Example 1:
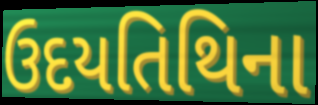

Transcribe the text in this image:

ઉદયતિથિના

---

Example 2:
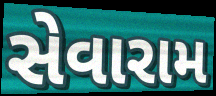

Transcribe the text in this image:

સેવારામ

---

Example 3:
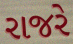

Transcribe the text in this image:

રાજરે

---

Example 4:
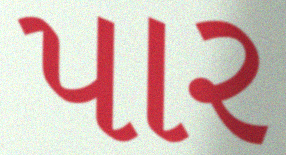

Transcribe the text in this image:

પાર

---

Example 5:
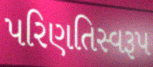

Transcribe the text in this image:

પરિણતિસ્વરૂપ